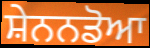
ਸ਼ੇਨਨਡੋਆ